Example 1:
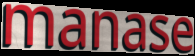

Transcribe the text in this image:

manase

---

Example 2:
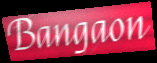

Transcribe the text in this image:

Bangaon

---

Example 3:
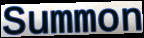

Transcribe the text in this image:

Summon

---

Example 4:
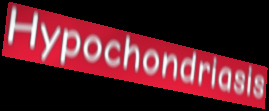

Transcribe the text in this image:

Hypochondriasis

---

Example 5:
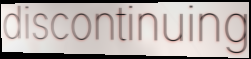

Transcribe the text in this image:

discontinuing